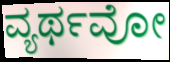
ವ್ಯರ್ಥವೋ